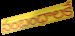
సంబంధాలకే